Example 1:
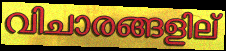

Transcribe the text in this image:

വിചാരങ്ങളില്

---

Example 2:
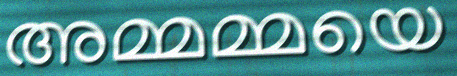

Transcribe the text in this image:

അമ്മമ്മയെ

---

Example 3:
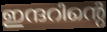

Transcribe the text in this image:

ഇന്ദറിന്റെ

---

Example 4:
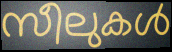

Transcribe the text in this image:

സീലുകൾ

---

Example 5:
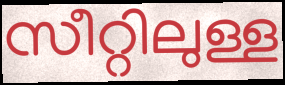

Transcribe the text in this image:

സീറ്റിലുള്ള